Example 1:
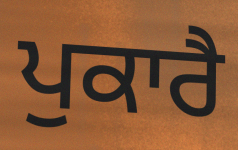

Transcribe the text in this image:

ਪੁਕਾਰੈ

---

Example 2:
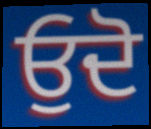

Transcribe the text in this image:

ਓੁਦੋ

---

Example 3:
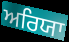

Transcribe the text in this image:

ਅਰਿਯਾ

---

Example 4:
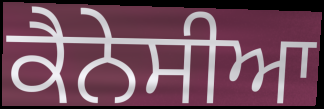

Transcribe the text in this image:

ਕੈਨੇਸੀਆ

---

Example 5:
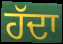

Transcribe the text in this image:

ਹੱਦਾ